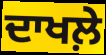
ਦਾਖਲ਼ੇ